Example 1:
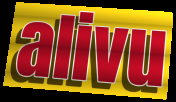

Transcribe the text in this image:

alivu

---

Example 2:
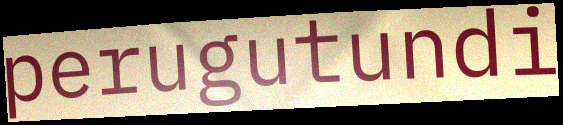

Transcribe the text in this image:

perugutundi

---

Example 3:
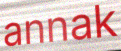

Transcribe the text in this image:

annak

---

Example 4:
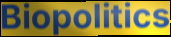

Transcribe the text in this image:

Biopolitics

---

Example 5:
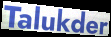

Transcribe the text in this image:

Talukder